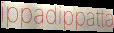
ippadippatta